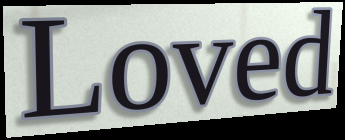
Loved